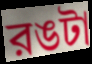
রঙটা